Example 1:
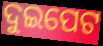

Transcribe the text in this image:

ଦୁଇପେଟ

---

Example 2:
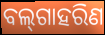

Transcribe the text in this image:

ବଲ୍‌ଗାହରିଣ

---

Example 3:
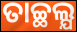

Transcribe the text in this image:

ତାଚ୍ଛଲ୍ଯ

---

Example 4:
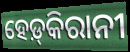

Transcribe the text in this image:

ହେଡ଼୍‌କିରାନୀ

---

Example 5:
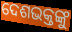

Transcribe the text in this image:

ଦେଶଭକ୍ତଙ୍କୁ